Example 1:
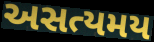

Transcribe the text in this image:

અસત્યમય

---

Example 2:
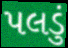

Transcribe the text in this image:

પલડું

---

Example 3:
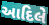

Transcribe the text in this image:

આદિલે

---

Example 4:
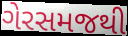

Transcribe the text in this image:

ગેરસમજથી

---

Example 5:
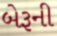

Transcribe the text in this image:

બેરૂની